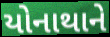
યોનાથાને